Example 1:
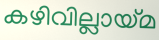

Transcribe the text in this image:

കഴിവില്ലായ്മ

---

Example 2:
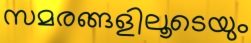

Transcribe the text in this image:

സമരങ്ങളിലൂടെയും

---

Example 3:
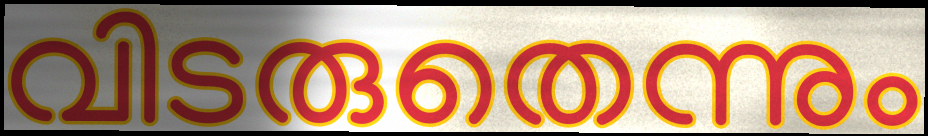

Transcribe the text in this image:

വിടരുതെന്നും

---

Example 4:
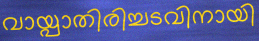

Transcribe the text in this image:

വായ്പാതിരിച്ചടവിനായി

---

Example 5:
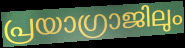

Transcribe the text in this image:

പ്രയാഗ്രാജിലും